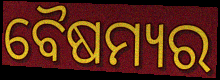
ବୈଷମ୍ଯର